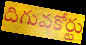
దిగువకోర్టు